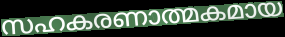
സഹകരണാത്മകമായ